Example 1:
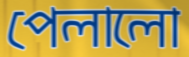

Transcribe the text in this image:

পেলালো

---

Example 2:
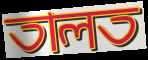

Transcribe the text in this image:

তালত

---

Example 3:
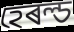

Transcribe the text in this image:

হেৰল্ড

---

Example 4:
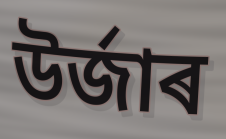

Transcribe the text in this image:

উৰ্জাৰ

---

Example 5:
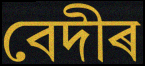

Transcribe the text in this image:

বেদীৰ